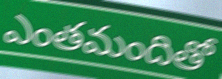
ఎంతమందితో